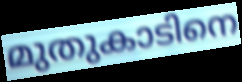
മുതുകാടിനെ